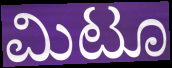
ಮಿಟೂ